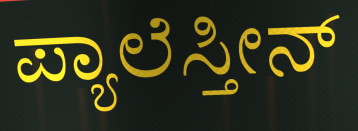
ಪ್ಯಾಲೆಸ್ತೀನ್